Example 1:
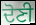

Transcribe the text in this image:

ਦੋਣੀ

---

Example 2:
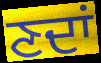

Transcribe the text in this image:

ਣਦਾਂ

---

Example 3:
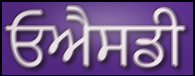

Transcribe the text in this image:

ਓਐਸਡੀ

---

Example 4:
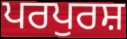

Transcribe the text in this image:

ਪਰਪੁਰਸ਼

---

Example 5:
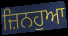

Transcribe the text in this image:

ਜ਼ਿਨਹੁਆ